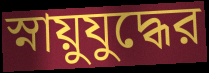
স্নায়ুযুদ্ধের